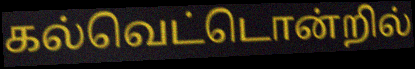
கல்வெட்டொன்றில்